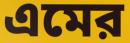
এমের